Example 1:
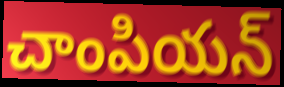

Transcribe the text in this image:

చాంపియన్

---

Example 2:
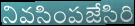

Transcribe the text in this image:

నివసింపజేసిరి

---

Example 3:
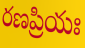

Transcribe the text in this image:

రణప్రియః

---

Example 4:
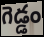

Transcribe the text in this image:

గెడ్డం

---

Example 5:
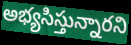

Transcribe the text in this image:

అభ్యసిస్తున్నారని